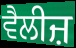
ਵੈਲੀਜ਼